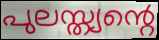
പുലസ്ത്യന്റെ